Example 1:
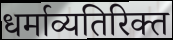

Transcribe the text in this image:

धर्माव्यतिरिक्त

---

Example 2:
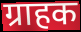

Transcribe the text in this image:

ग्राहक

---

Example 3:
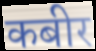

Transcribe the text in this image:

कबीर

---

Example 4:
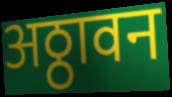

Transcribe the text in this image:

अठ्ठावन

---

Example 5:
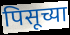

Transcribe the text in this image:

पिसूच्या